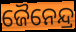
ଜୈନେନ୍ଦ୍ର